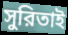
সুরিতাই